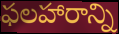
ఫలహారాన్ని